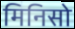
मिनिसो